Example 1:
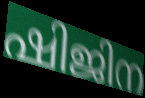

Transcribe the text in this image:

ഷിജിന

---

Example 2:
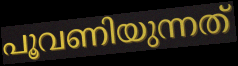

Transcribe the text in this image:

പൂവണിയുന്നത്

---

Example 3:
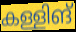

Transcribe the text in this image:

കള്ളിങ്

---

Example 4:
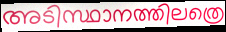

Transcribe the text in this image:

അടിസ്ഥാനത്തിലത്രെ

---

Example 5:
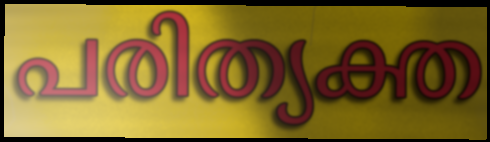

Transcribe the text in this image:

പരിത്യക്ത